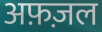
अफ़ज़ल